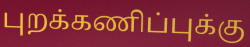
புறக்கணிப்புக்கு